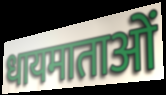
धायमाताओं